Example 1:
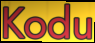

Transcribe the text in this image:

Kodu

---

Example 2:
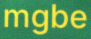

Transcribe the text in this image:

mgbe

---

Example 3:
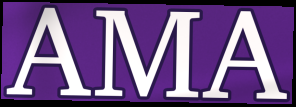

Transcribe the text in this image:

AMA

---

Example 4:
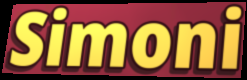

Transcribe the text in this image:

Simoni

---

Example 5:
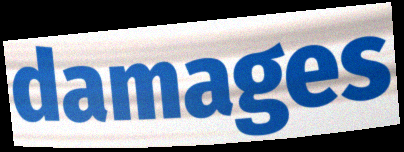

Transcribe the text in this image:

damages